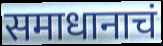
समाधानाचं